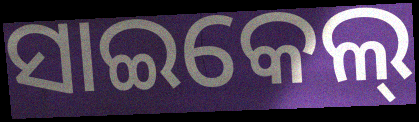
ସାଇକେଲ୍